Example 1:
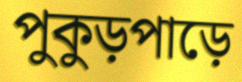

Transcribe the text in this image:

পুকুড়পাড়ে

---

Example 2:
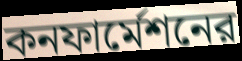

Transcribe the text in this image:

কনফার্মেশনের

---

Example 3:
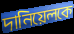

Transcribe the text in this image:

দানিয়েলকে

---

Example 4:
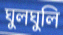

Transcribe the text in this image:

ঘুলঘুলি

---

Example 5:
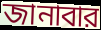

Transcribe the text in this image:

জানাবার